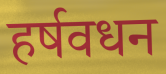
हर्षवधन